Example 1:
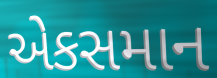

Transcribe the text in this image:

એકસમાન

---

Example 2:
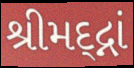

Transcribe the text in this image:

શ્રીમદ્દ્નાં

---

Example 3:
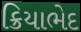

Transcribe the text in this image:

ક્રિયાભેદ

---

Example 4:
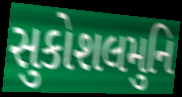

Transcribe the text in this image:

સુકોશલમુનિ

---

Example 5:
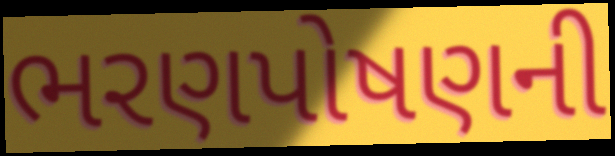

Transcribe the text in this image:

ભરણપોષણની